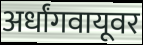
अर्धांगवायूवर